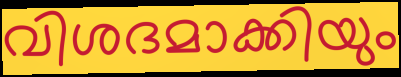
വിശദമാക്കിയും